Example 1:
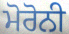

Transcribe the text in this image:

ਮੋਰੋਨੀ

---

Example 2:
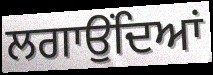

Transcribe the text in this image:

ਲਗਾਉੰਦਿਆਂ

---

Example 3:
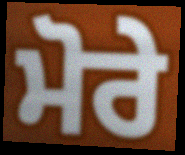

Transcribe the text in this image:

ਮੋਰੇ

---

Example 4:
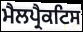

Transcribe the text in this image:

ਮੈਲਪ੍ਰੈਕਟਿਸ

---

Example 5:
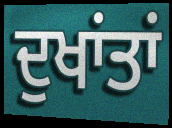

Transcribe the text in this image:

ਦੁਖਾਂਤਾਂ